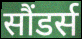
सौंडर्स